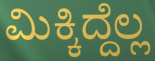
ಮಿಕ್ಕಿದ್ದೆಲ್ಲ